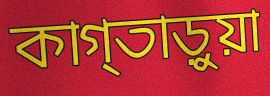
কাগ্‌তাড়ুয়া